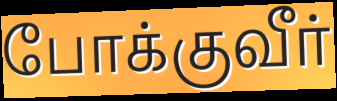
போக்குவீர்